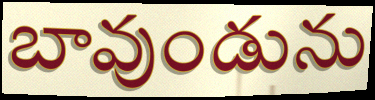
బావుండును